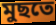
মুছতে